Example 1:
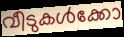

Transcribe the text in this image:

വീടുകൾക്കോ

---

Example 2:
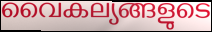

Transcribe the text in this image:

വൈകല്യങ്ങളുടെ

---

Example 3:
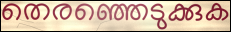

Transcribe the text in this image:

തെരഞ്ഞെടുക്കുക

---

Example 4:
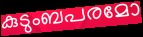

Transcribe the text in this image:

കുടുംബപരമോ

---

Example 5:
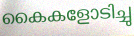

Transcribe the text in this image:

കൈകളോടിച്ചു